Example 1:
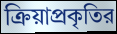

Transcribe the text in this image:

ক্রিয়াপ্রকৃতির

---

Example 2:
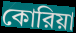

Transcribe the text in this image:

কোরিয়া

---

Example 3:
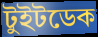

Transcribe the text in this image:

টুইটডেক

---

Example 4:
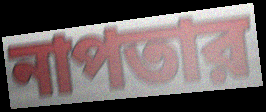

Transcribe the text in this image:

নাপতার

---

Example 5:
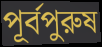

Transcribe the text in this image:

পূর্বপুরুষ